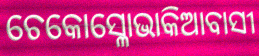
ଚେକୋସ୍ଳୋଭାକିଆବାସୀ